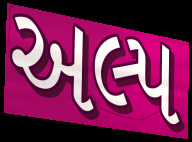
અલ્પ